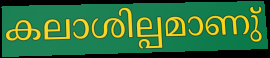
കലാശില്പമാണു്